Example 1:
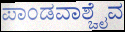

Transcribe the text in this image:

ಪಾಂಡವಾಶ್ಚೈವ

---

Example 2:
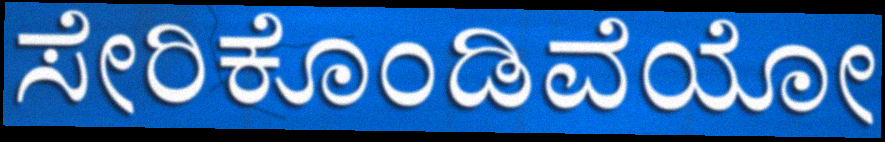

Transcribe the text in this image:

ಸೇರಿಕೊಂಡಿವೆಯೋ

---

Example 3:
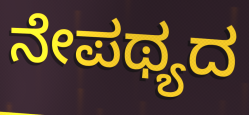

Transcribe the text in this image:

ನೇಪಥ್ಯದ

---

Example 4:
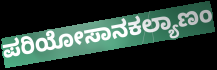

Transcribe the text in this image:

ಪರಿಯೋಸಾನಕಲ್ಯಾಣಂ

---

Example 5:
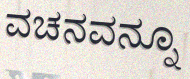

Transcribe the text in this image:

ವಚನವನ್ನೂ